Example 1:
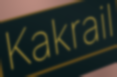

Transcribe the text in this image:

Kakrail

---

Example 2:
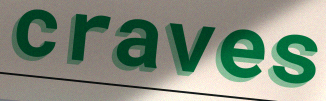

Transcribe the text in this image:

craves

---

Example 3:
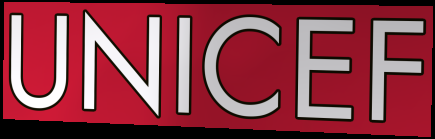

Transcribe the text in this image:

UNICEF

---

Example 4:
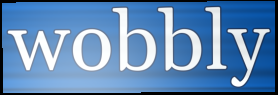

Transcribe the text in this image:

wobbly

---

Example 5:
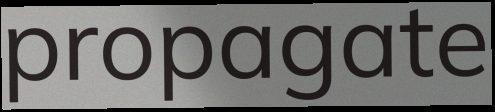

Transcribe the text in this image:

propagate